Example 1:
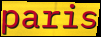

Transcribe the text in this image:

paris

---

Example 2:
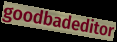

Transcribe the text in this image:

goodbadeditor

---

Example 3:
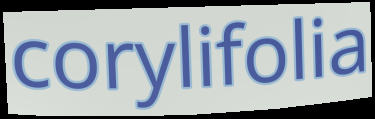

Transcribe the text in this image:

corylifolia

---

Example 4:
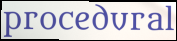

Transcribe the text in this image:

procedural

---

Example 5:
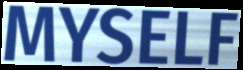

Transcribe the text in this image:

MYSELF